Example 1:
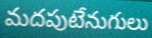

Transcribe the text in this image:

మదపుటేనుగులు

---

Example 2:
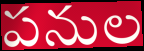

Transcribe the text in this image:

పనుల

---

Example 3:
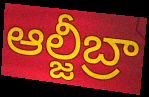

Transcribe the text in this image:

ఆల్జీబ్రా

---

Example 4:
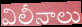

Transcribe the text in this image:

విలీనాలు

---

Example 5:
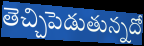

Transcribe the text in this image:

తెచ్చిపెడుతున్నదో